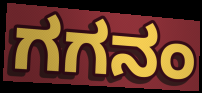
ಗಗನಂ